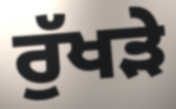
ਰੁੱਖੜੇ